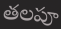
తలపూ